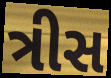
ત્રીસ